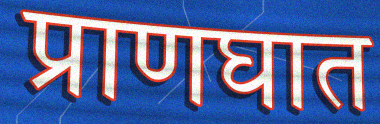
प्राणघात